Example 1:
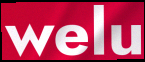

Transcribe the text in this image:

welu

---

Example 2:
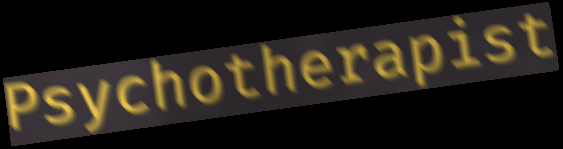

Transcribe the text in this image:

Psychotherapist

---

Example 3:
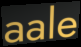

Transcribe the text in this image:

aale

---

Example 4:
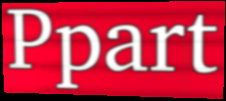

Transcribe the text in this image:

Ppart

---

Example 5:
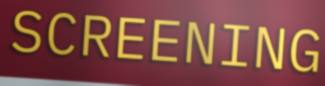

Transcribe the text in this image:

SCREENING